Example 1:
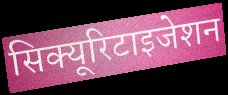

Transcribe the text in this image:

सिक्यूरिटाइजेशन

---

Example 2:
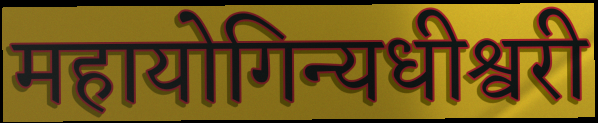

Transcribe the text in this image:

महायोगिन्यधीश्वरी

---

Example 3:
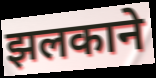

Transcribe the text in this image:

झलकाने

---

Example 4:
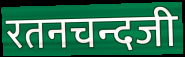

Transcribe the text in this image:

रतनचन्दजी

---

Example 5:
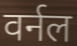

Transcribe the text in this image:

वर्नल